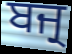
ਬਜ੍ਰ